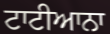
ਟਾਟੀਆਨਾ